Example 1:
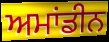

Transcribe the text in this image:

ਅਮਾਂਡੀਨ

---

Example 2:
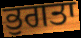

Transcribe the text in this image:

ਭੁਗਤਾ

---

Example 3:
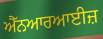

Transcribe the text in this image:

ਐੱਨਆਰਆਈਜ਼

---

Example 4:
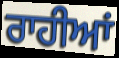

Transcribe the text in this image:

ਰਾਹੀਆਂ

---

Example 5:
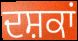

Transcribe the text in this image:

ਦਸ਼ਕਾਂ